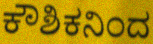
ಕೌಶಿಕನಿಂದ